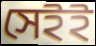
সেইই